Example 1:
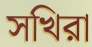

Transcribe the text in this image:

সখিরা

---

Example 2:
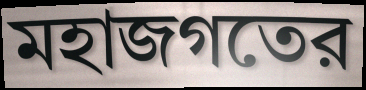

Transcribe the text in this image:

মহাজগতের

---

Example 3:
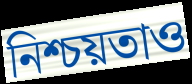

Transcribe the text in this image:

নিশ্চয়তাও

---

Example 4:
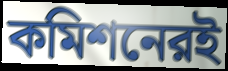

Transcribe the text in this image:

কমিশনেরই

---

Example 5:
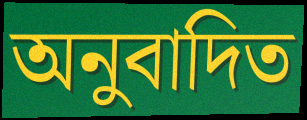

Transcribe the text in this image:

অনুবাদিত